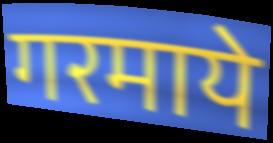
गरमाये